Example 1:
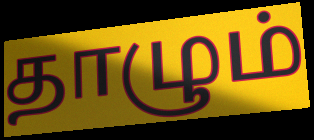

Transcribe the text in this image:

தாழும்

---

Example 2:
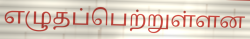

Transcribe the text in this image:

எழுதப்பெற்றுள்ளன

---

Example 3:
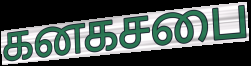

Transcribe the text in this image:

கனகசபை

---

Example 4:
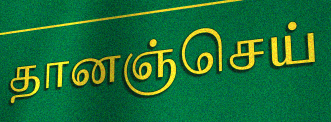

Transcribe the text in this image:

தானஞ்செய்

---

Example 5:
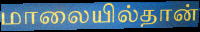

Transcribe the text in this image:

மாலையில்தான்